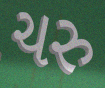
ચરુ